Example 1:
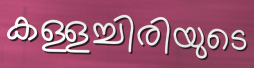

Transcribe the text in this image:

കള്ളച്ചിരിയുടെ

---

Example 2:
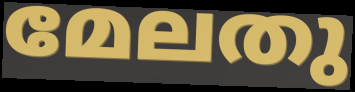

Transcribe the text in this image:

മേലതു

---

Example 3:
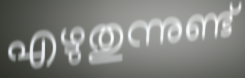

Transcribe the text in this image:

എഴുതുന്നുണ്ട്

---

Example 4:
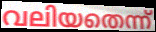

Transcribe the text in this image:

വലിയതെന്ന്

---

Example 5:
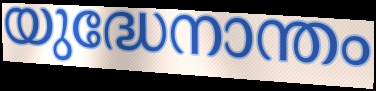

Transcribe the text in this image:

യുദ്ധേനാന്തം